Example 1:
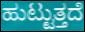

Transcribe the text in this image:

ಹುಟ್ಟುತ್ತದೆ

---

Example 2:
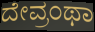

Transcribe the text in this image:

ದೇವ್ರಂಥಾ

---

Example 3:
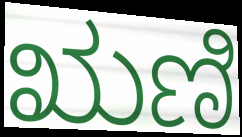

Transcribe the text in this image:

ಋಣಿ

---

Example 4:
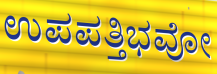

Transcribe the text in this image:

ಉಪಪತ್ತಿಭವೋ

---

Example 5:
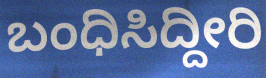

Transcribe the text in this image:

ಬಂಧಿಸಿದ್ದೀರಿ